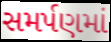
સમર્પણમાં